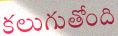
కలుగుతోంది